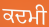
ਕਦਮੀ